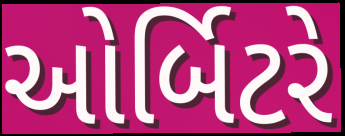
ઓર્બિટરે